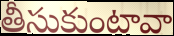
తీసుకుంటావా